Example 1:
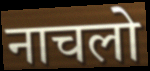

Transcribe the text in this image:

नाचलो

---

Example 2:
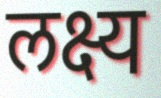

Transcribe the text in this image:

लक्ष्य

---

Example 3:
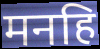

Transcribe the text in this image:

मनहि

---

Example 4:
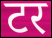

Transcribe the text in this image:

टर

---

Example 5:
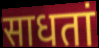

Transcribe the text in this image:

साधतां